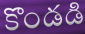
కొండడి